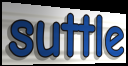
suttle